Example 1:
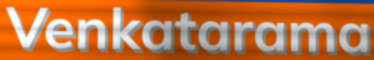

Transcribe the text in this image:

Venkatarama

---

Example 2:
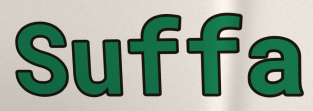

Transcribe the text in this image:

Suffa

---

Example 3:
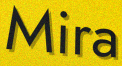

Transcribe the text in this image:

Mira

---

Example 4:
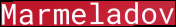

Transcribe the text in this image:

Marmeladov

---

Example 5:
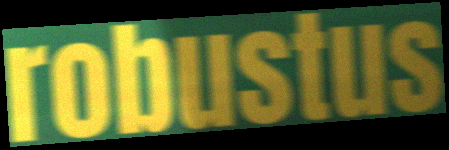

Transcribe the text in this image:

robustus